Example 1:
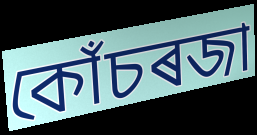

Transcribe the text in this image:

কোঁচৰজা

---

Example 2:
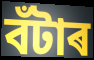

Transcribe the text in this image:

বঁটাৰ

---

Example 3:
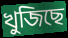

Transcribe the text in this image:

খুজিছে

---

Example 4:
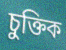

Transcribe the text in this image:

চুক্তিক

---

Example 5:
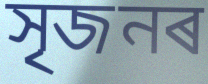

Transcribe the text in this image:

সৃজনৰ